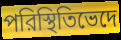
পরিস্থিতিভেদে